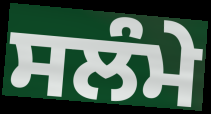
ਸਲੰਮੇ